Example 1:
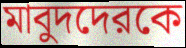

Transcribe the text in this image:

মাবুদদেরকে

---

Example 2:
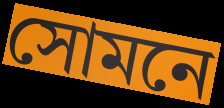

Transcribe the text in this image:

সোমনে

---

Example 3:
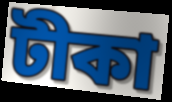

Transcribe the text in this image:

টীকা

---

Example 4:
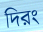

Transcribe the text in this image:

দিরং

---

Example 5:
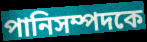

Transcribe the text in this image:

পানিসম্পদকে